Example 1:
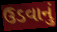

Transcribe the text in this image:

ઉડવાનું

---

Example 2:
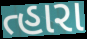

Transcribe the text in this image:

ત્હારા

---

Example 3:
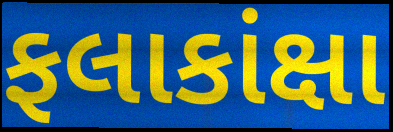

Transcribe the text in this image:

ફલાકાંક્ષા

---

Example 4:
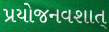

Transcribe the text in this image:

પ્રયોજનવશાત્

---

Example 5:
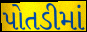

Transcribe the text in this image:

પોતડીમાં